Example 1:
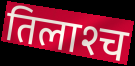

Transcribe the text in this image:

तिलाश्च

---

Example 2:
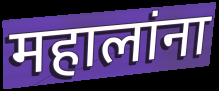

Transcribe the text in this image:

महालांना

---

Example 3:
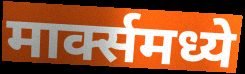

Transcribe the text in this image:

मार्क्समध्ये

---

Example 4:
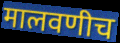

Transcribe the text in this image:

मालवणीच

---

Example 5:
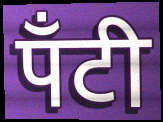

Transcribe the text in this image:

पॅंटी